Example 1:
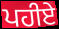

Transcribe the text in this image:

ਪਹੀਏ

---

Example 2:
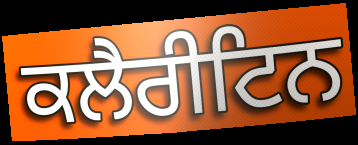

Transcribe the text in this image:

ਕਲੈਰੀਟਿਨ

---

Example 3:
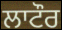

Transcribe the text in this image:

ਲਾਟੌਰ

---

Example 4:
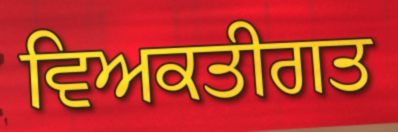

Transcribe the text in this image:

ਵਿਅਕਤੀਗਤ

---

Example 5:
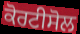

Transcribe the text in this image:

ਕੋਰਟੀਸੋਲ